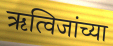
ऋत्विजांच्या